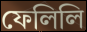
ফেলিলি